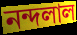
নন্দলাল